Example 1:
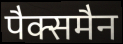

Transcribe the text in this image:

पैक्समैन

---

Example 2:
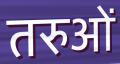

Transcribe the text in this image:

तरुओं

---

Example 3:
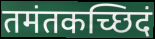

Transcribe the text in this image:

तमंतकच्छिदं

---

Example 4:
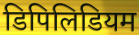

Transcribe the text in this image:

डिपिलिडियम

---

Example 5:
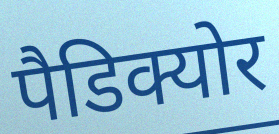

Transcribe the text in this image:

पैडिक्योर